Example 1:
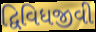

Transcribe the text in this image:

દ્વિવિધજીવી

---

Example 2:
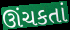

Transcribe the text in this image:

ઊંચકતાં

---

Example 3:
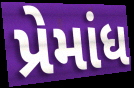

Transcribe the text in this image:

પ્રેમાંધ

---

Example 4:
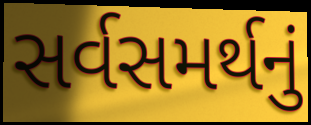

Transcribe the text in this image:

સર્વસમર્થનું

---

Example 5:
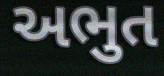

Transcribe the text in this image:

અભુત